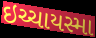
ઇચ્ચાયસ્મા